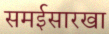
समईसारखा